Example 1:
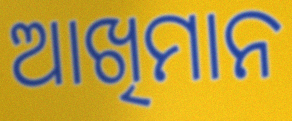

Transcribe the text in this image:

ଆଖିମାନ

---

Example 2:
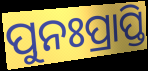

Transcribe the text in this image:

ପୁନଃପ୍ରାପ୍ତି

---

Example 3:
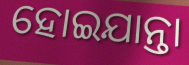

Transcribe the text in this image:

ହୋଇଯାନ୍ତା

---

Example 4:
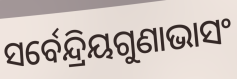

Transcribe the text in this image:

ସର୍ବେନ୍ଦ୍ରିୟଗୁଣାଭାସଂ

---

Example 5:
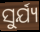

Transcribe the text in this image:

ସୁର୍ଯ୍ୟ